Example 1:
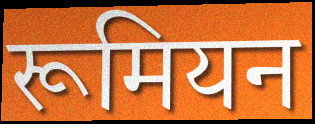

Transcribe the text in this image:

रूमियन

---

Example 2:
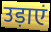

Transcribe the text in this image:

उड़ाएं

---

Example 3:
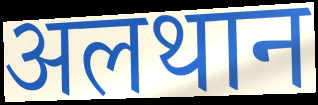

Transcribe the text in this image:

अलथान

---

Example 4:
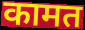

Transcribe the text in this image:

कामत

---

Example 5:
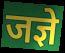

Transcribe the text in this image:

जज्ञे